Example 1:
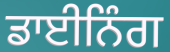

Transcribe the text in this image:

ਡਾਈਨਿੰਗ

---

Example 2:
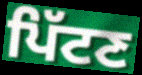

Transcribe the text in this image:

ਪਿੱਟਣ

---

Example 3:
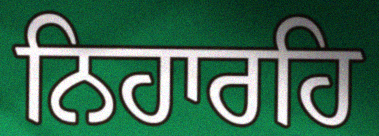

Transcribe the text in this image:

ਨਿਹਾਰਹਿ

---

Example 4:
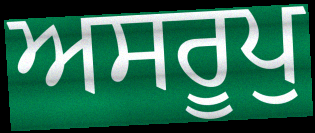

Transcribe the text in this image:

ਅਸਰੂਪੁ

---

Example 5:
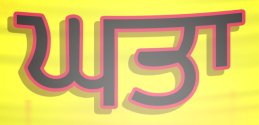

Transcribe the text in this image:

ਘਤਾ